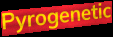
Pyrogenetic